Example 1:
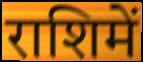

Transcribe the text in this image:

राशिमें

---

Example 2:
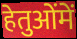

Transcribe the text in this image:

हेतुओंमें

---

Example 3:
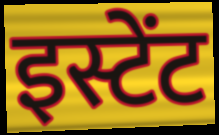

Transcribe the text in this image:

इस्टेंट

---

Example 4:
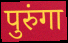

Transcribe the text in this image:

पुरुंगा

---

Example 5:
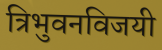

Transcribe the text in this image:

त्रिभुवनविजयी